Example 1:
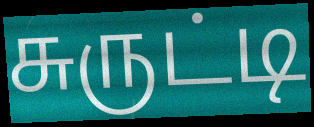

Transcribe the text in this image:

சுருட்டி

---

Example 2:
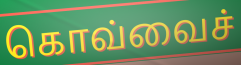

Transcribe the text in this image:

கொவ்வைச்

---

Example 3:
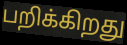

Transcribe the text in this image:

பறிக்கிறது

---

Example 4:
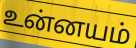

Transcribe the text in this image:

உன்னயம்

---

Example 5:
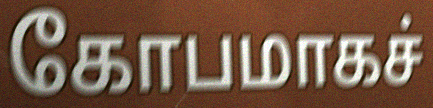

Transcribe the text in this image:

கோபமாகச்